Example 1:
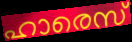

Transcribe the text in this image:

ഹാരെസ്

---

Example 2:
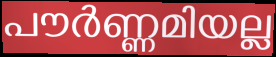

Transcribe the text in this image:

പൗർണ്ണമിയല്ല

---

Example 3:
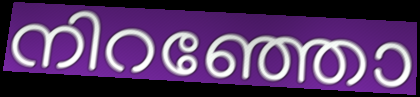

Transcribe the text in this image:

നിറഞ്ഞോ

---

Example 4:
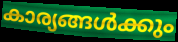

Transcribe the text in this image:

കാര്യങ്ങൾക്കും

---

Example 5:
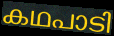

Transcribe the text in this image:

കഥപാടി